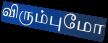
விரும்புமோ